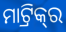
ମାଟ୍ରିକ୍‌ର